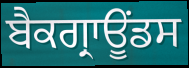
ਬੈਕਗ੍ਰਾਊਂਡਸ